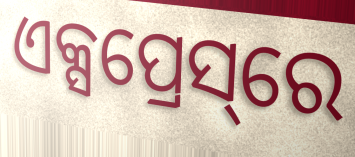
ଏକ୍ସପ୍ରେସ୍‌ରେ